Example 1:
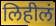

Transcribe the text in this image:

लिहीलं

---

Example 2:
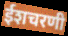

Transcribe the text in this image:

ईशचरणी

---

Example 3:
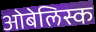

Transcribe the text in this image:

ओबेलिस्क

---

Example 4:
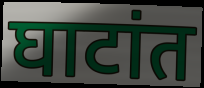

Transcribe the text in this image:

घाटांत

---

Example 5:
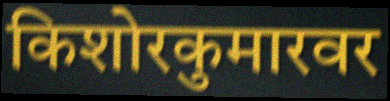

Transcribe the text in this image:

किशोरकुमारवर